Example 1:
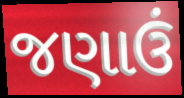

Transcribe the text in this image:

જણાઉં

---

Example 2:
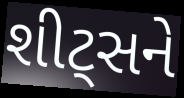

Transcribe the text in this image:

શીટ્સને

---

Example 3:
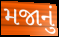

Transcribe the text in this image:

મજાનું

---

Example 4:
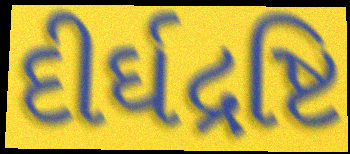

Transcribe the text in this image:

દીર્ઘદ્રષ્ટિ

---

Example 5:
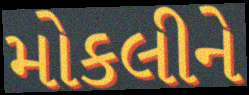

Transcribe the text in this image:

મોકલીને